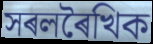
সৰলৰৈখিক